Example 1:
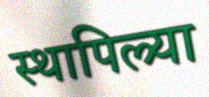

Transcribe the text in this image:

स्थापिल्या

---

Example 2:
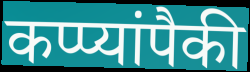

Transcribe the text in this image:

कप्प्यांपैकी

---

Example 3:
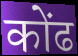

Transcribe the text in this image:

कोंढ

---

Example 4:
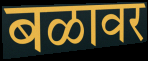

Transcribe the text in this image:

बळावर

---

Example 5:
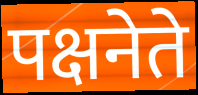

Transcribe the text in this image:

पक्षनेते